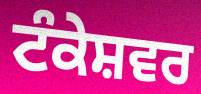
ਟੰਕੇਸ਼ਵਰ